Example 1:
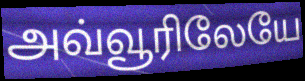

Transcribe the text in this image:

அவ்வூரிலேயே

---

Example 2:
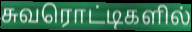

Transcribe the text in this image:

சுவரொட்டிகளில்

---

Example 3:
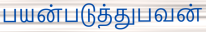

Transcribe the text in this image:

பயன்படுத்துபவன்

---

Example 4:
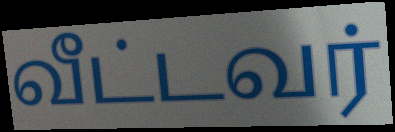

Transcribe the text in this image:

வீட்டவர்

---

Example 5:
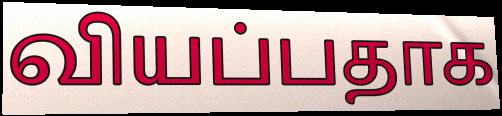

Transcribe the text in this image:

வியப்பதாக